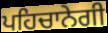
ਪਹਿਚਾਨੇਗੀ